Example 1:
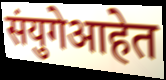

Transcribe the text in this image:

संयुगेआहेत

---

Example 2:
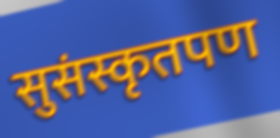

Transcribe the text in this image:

सुसंस्कृतपण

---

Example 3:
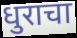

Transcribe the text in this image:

धुराचा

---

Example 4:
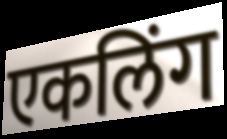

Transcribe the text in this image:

एकलिंग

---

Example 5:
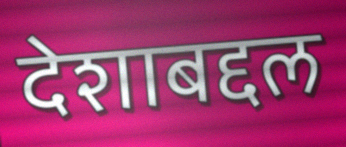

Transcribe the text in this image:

देशाबद्दल